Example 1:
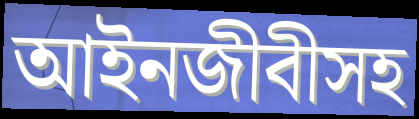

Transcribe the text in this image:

আইনজীবীসহ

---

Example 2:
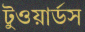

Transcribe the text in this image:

টুওয়ার্ডস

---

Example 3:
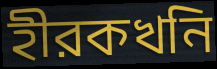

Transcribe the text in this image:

হীরকখনি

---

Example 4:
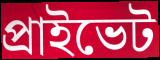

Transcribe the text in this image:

প্রাইভেট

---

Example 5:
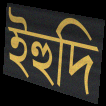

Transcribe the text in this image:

ইহুদি